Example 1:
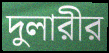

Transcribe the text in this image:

দুলারীর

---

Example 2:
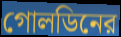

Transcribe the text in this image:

গোলডিনের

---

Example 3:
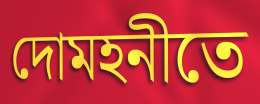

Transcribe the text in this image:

দোমহনীতে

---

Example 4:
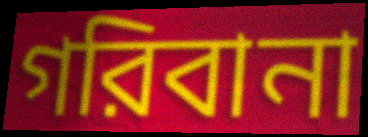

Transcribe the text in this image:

গরিবানা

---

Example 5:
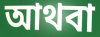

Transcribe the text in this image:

আথবা